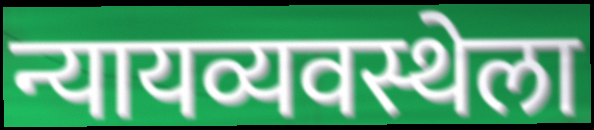
न्यायव्यवस्थेला